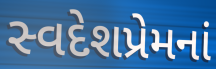
સ્વદેશપ્રેમનાં